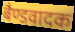
बैण्डवादक